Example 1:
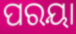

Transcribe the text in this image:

ପରୟା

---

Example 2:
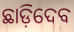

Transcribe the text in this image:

ଛାଡ଼ିଦେବ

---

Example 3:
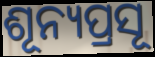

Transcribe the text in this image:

ଶୂନ୍ୟପ୍ରସୂ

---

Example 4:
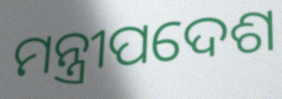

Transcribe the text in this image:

ମନ୍ତ୍ରୀପଦେଶ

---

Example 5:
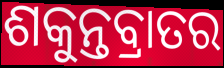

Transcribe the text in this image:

ଶକୁନ୍ତବ୍ରାତର